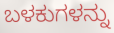
ಬಳಕುಗಳನ್ನು